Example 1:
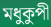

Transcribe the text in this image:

মধুকুপী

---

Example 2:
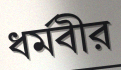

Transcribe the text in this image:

ধর্মবীর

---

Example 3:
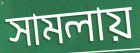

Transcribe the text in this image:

সামলায়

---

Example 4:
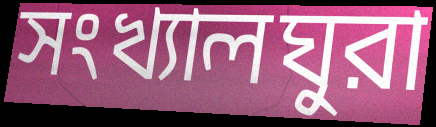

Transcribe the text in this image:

সংখ্যালঘুরা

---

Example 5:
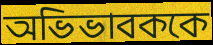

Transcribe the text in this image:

অভিভাবককে